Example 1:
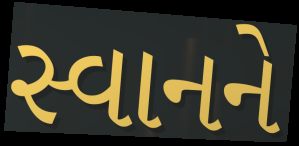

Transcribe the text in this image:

સ્વાનને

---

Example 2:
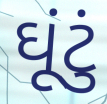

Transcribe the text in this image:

ઘૂંટું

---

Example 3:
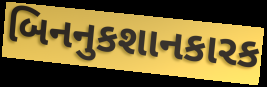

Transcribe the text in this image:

બિનનુકશાનકારક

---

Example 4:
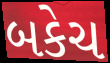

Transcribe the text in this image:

બકેચ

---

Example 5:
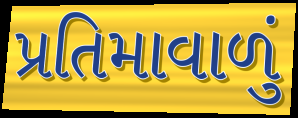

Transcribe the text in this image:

પ્રતિમાવાળું